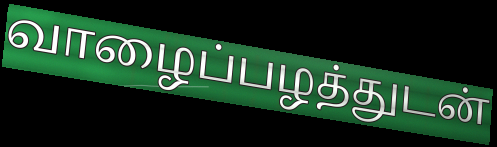
வாழைப்பழத்துடன்